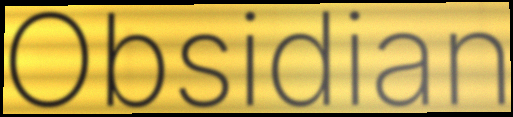
Obsidian